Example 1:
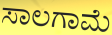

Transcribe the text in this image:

ಸಾಲಗಾಮೆ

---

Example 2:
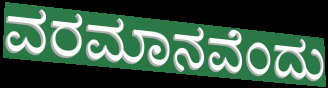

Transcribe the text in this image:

ವರಮಾನವೆಂದು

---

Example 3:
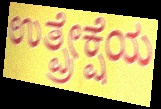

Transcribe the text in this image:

ಉತ್ಪ್ರೇಕ್ಷೆಯ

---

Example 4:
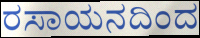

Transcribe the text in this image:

ರಸಾಯನದಿಂದ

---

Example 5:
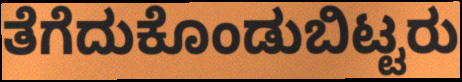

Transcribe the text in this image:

ತೆಗೆದುಕೊಂಡುಬಿಟ್ಟರು